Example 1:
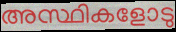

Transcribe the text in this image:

അസ്ഥികളോടു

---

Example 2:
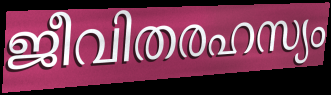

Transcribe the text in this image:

ജീവിതരഹസ്യം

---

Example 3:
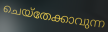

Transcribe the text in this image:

ചെയ്തേക്കാവുന്ന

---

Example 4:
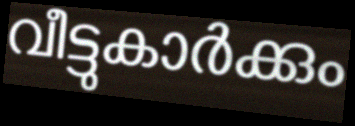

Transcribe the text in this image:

വീട്ടുകാർക്കും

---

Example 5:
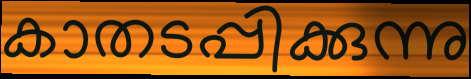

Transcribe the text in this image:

കാതടപ്പിക്കുന്നു